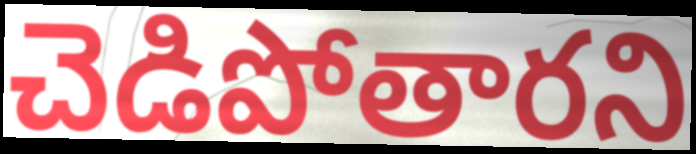
చెడిపోతారని